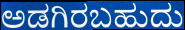
ಅಡಗಿರಬಹುದು